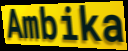
Ambika